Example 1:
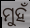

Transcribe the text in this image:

ମୁହଁ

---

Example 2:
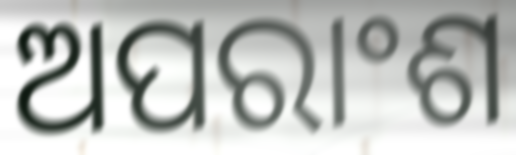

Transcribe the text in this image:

ଅପରାଂଶ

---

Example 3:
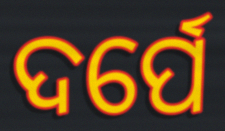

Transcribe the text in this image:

ଦର୍ପେ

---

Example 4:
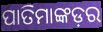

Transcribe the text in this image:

ପାତିମାଙ୍କଡ଼ର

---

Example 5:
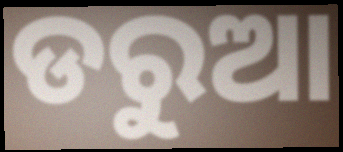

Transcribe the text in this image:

ଡରୁଆ